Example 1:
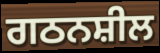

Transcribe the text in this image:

ਗਠਨਸ਼ੀਲ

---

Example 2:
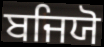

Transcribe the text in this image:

ਬਜਿਯੋ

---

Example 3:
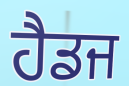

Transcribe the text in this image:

ਹੈਡਜ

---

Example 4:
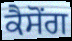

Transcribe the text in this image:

ਕੈਸੋਂਗ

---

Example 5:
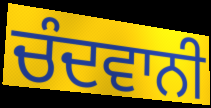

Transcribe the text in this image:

ਚੰਦਵਾਨੀ